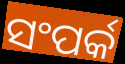
ସଂପର୍କ